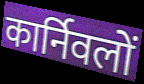
कार्निवलों